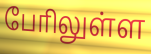
பேரிலுள்ள